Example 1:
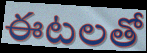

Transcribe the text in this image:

ఈటలతో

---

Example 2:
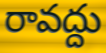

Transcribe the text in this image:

రావద్దు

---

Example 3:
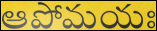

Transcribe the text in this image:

ఆపోమయః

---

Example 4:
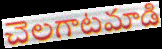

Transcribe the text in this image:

చెలగాటమాడి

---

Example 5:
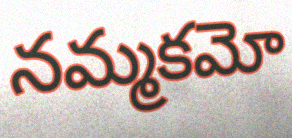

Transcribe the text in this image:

నమ్మకమో